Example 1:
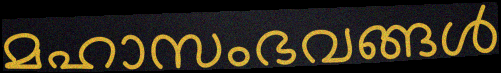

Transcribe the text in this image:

മഹാസംഭവങ്ങൾ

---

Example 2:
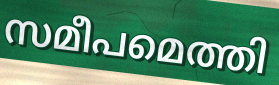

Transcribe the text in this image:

സമീപമെത്തി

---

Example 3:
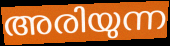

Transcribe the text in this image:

അരിയുന്ന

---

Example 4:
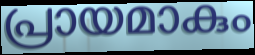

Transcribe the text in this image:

പ്രായമാകും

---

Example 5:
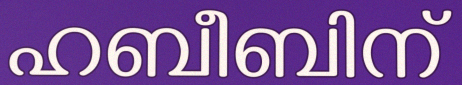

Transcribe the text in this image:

ഹബീബിന്